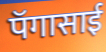
पॅगासाई